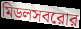
মিডলসবরোর